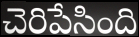
చెరిపేసింది